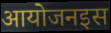
आयोजनइस